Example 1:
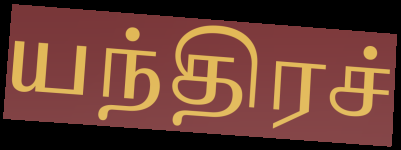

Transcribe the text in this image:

யந்திரச்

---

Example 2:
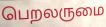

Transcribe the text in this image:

பெறலருமை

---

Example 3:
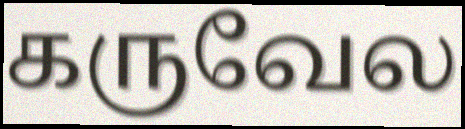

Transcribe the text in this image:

கருவேல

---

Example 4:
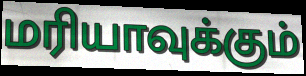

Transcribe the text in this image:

மரியாவுக்கும்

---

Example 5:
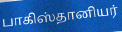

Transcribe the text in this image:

பாகிஸ்தானியர்